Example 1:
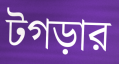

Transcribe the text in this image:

টগড়ার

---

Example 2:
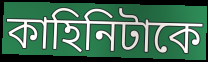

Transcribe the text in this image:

কাহিনিটাকে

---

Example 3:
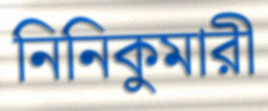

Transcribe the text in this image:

নিনিকুমারী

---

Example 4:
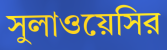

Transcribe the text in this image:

সুলাওয়েসির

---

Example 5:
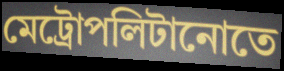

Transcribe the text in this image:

মেট্রোপলিটানোতে